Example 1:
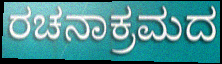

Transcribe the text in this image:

ರಚನಾಕ್ರಮದ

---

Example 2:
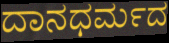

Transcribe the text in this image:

ದಾನಧರ್ಮದ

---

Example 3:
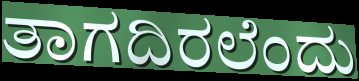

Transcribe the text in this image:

ತಾಗದಿರಲೆಂದು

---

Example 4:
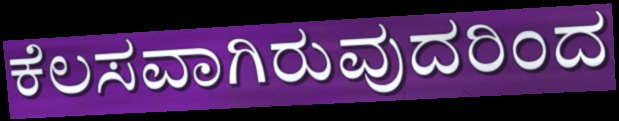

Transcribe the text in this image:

ಕೆಲಸವಾಗಿರುವುದರಿಂದ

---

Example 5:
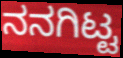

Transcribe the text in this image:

ನನಗಿಟ್ಟ